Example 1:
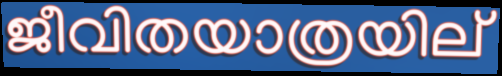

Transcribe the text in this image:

ജീവിതയാത്രയില്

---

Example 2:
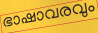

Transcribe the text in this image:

ഭാഷാവരവും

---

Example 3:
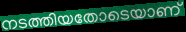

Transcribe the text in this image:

നടത്തിയതോടെയാണ്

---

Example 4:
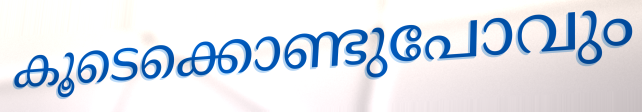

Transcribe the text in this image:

കൂടെക്കൊണ്ടുപോവും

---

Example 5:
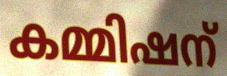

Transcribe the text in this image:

കമ്മിഷന്